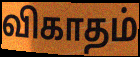
விகாதம்